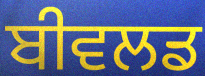
ਬੀਵਲਡ